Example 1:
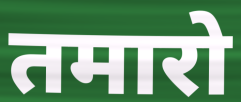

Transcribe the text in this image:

तमारो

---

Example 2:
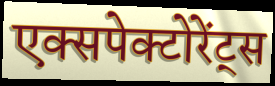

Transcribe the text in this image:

एक्सपेक्टोरेंट्स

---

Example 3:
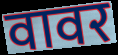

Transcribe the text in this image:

वावर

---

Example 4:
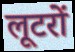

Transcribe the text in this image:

लूटरों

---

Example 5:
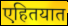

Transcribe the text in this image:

एहितयात